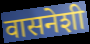
वासनेशी